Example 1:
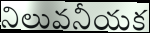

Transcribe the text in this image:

నిలువనీయక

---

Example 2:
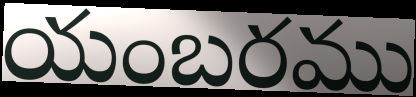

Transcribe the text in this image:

యంబరము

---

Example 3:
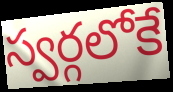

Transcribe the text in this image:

స్వర్గలోకే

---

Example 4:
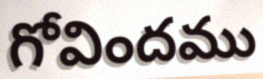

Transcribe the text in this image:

గోవిందము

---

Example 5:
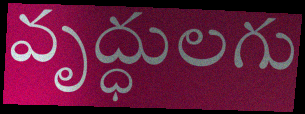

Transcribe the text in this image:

వృద్ధులగు